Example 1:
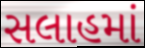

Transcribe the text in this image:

સલાહમાં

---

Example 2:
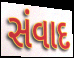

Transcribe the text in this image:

સંવાદ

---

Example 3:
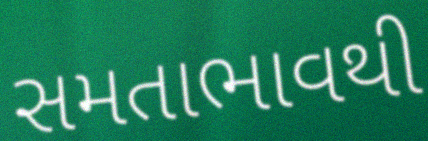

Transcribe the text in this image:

સમતાભાવથી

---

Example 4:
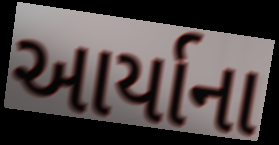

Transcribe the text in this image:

આર્યાના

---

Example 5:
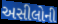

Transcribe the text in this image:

અસીલોની